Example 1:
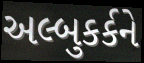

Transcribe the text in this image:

અલ્બુકર્કને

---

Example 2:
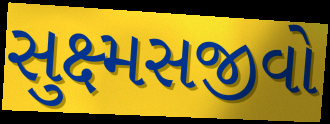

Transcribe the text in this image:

સુક્ષ્મસજીવો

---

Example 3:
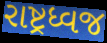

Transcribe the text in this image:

રાષ્ટ્રધ્વજ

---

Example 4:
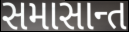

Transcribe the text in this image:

સમાસાન્ત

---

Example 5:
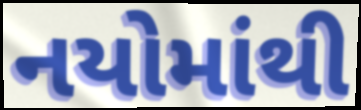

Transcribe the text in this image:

નયોમાંથી